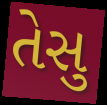
તેસુ